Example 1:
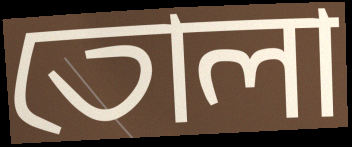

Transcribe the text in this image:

তোলা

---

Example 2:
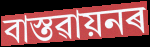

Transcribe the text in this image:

বাস্তৱায়নৰ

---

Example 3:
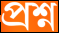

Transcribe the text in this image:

প্ৰশ্ন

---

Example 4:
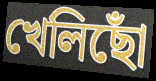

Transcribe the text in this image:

খেলিছোঁ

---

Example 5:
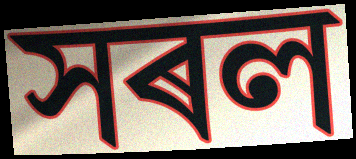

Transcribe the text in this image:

সৰল